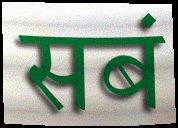
सबं